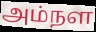
அம்நள